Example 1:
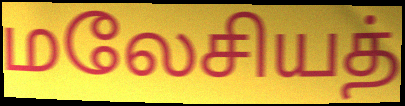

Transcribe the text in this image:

மலேசியத்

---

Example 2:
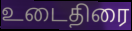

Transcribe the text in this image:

உடைதிரை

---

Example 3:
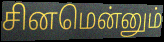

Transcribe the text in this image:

சினமென்னும்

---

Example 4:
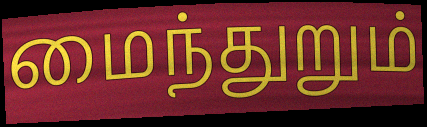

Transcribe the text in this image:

மைந்துறும்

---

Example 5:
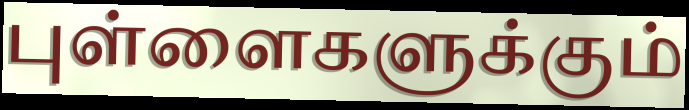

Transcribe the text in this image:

புள்ளைகளுக்கும்